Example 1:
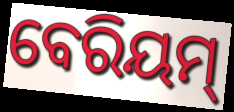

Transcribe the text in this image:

ବେରିୟମ୍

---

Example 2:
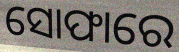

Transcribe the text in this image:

ସୋଫାରେ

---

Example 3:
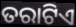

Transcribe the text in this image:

ତରାଟିଏ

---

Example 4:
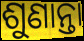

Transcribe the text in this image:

ଶୁଣାନ୍ତା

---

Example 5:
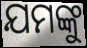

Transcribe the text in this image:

ଯମଙ୍କୁ